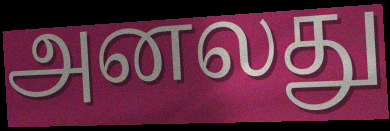
அனலது